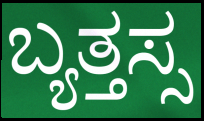
ಬ್ಯತ್ತಸ್ಸ